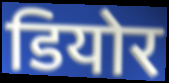
डियोर